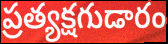
ప్రత్యక్షగుడారం